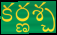
కర్ణశ్చ